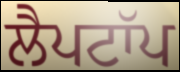
ਲੈਪਟਾੱਪ